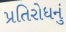
પ્રતિરોધનું